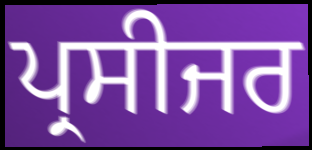
ਪ੍ਰਸੀਜਰ